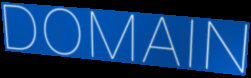
DOMAIN